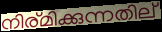
നിര്മിക്കുന്നതില്